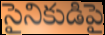
సైనికుడిపై